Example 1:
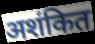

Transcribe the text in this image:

अशंकित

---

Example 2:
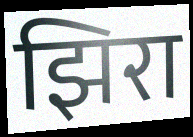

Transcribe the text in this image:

झिरा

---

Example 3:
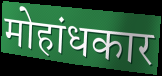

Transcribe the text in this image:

मोहांधकार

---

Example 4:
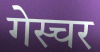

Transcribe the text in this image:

गेस्चर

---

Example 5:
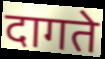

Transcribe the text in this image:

दागते